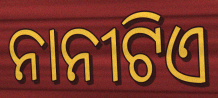
ନାନୀଟିଏ